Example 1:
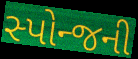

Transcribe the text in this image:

સ્પોન્જની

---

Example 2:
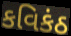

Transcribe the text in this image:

કવિકંઠ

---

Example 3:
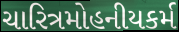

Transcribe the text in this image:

ચારિત્રમોહનીયકર્મ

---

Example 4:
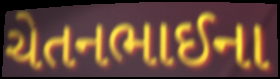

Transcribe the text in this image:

ચેતનભાઈના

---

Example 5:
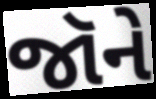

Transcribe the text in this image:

જૉને